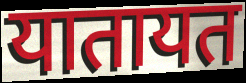
यातायत